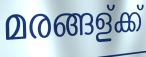
മരങ്ങള്ക്ക്